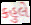
કહુલે